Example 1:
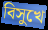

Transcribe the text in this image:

বিসুখে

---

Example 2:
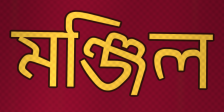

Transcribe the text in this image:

মঞ্জিল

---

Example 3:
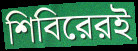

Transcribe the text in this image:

শিবিরেরই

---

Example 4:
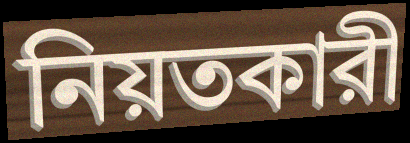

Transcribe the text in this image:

নিয়তকারী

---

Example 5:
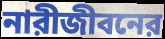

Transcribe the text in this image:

নারীজীবনের